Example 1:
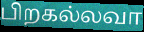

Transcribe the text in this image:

பிறகல்லவா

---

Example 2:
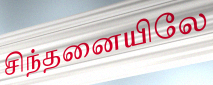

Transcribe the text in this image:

சிந்தனையிலே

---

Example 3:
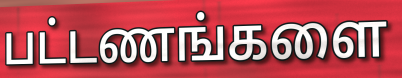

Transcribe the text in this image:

பட்டணங்களை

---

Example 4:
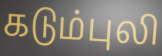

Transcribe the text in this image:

கடும்புலி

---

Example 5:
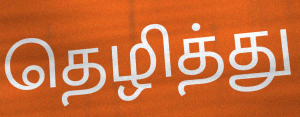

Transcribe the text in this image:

தெழித்து